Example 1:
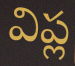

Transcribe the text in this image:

విప్ల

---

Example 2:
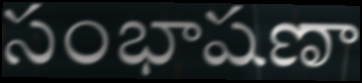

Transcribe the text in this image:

సంభాషణా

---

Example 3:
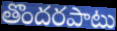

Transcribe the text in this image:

తొందరపాటు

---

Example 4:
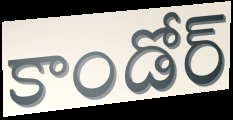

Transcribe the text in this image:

కాండోర్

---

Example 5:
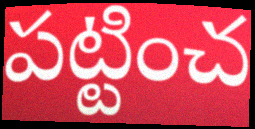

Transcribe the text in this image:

పట్టించ